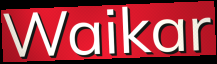
Waikar